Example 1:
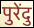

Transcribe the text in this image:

पुरेंदु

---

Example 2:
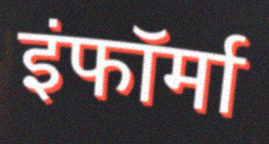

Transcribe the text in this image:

इंफॉर्मा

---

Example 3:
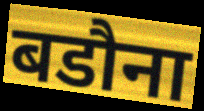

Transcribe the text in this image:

बडौना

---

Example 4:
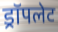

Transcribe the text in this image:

ड्रॉपलेट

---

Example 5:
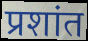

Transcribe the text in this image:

प्रशांत